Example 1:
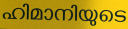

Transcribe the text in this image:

ഹിമാനിയുടെ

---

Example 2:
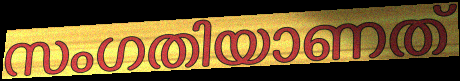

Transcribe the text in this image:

സംഗതിയാണത്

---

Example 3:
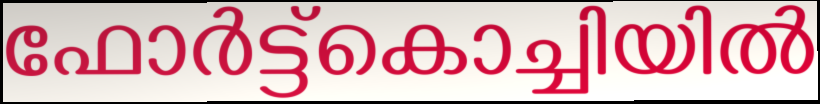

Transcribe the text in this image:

ഫോർട്ട്കൊച്ചിയിൽ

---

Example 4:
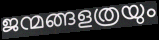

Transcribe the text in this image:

ജന്മങ്ങളത്രയും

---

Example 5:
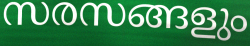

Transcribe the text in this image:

സരസങ്ങളും